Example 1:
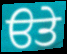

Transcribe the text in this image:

ੳਤੇ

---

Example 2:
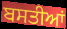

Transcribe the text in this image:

ਬਸਤੀਆਂ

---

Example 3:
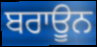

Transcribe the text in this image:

ਬਰਾਊਨ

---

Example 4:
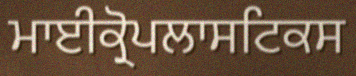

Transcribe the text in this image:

ਮਾਈਕ੍ਰੋਪਲਾਸਟਿਕਸ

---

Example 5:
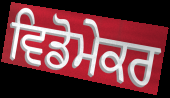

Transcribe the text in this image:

ਵਿਡੋਮੇਕਰ